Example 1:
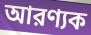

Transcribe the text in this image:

আরণ্যক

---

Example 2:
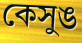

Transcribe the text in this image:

কেসুঙ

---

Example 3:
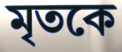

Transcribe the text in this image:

মৃতকে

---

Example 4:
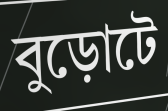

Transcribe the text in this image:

বুড়োটে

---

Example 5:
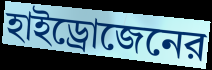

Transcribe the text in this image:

হাইড্রোজেনের